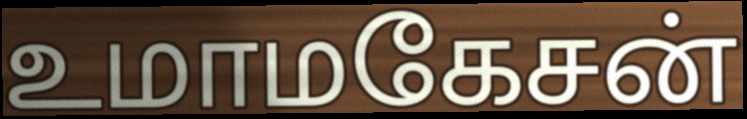
உமாமகேசன்